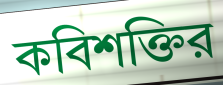
কবিশক্তির